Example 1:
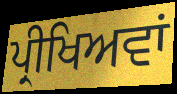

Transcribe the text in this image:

ਪ੍ਰੀਖਿਅਵਾਂ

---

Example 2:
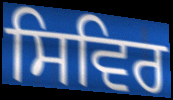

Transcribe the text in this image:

ਸਿਵਿਰ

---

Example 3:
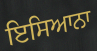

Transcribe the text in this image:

ਇਸਿਆਨਾ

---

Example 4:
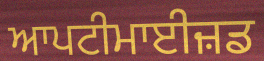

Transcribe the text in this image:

ਆਪਟੀਮਾਈਜ਼ਡ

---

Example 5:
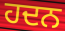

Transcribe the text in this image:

ਹਦਨ